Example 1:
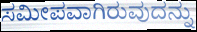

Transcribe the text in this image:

ಸಮೀಪವಾಗಿರುವುದನ್ನು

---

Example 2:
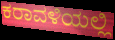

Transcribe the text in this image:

ಕರಾವಳಿಯಲ್ಲಿ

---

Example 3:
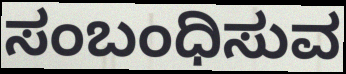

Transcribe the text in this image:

ಸಂಬಂಧಿಸುವ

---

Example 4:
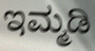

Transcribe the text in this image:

ಇಮ್ಮಡಿ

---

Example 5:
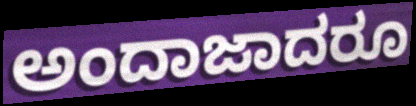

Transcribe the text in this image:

ಅಂದಾಜಾದರೂ